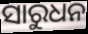
ସାରୁଧନ